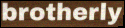
brotherly